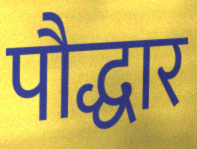
पौद्धार